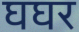
घघर